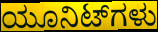
ಯೂನಿಟ್‌ಗಳು